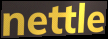
nettle